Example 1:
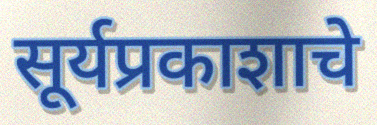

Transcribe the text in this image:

सूर्यप्रकाशाचे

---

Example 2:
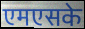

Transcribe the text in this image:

एमएसके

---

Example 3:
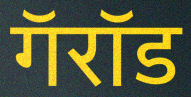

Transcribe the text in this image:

गॅरॉड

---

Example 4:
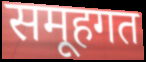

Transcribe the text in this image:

समूहगत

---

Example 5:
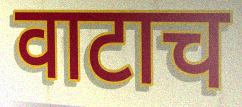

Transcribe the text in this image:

वाटाच